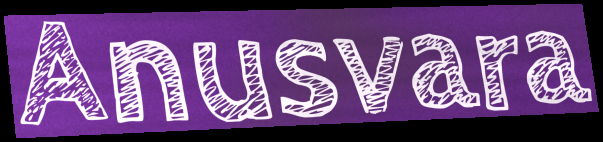
Anusvara